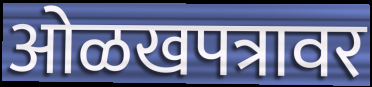
ओळखपत्रावर